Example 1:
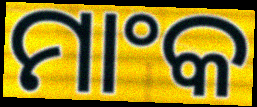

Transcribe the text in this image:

ମାଂକ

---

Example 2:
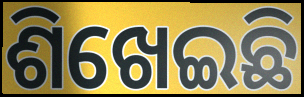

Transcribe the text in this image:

ଶିଖେଇଛି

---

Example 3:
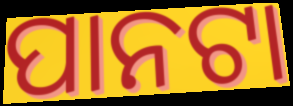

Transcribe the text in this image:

ପାନଟା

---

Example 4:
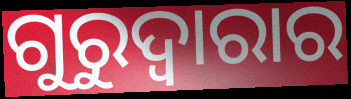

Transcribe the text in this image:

ଗୁରୁଦ୍ୱାରାର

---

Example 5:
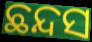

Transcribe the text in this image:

ଛନ୍ଦସ